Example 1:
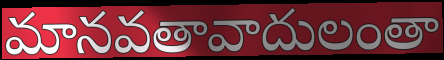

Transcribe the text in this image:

మానవతావాదులంతా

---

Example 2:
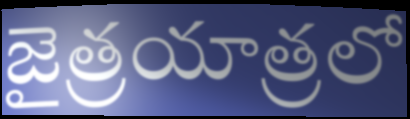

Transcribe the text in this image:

జైత్రయాత్రలో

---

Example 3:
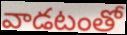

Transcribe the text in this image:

వాడటంతో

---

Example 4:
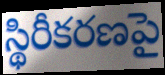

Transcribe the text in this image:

స్థిరీకరణపై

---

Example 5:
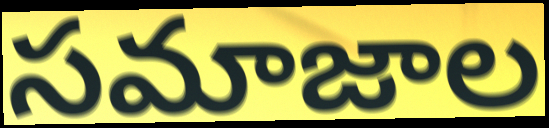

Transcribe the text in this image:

సమాజాల